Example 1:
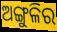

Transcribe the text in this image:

ଅଙ୍ଗୁଳିର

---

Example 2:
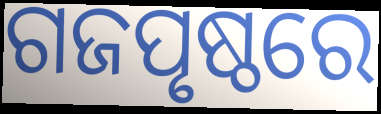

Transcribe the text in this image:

ଗଜପୃଷ୍ଠରେ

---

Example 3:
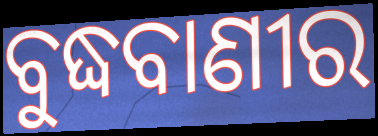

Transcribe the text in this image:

ବୁଦ୍ଧବାଣୀର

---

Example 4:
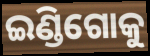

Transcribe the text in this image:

ଇଣ୍ଡିଗୋକୁ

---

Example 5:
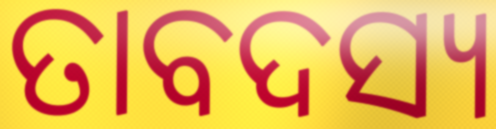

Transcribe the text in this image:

ତାବଦସ୍ୟ